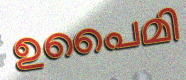
ഉപൈമി